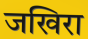
जखिरा